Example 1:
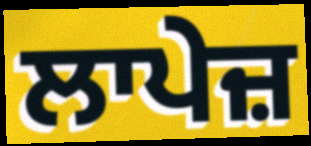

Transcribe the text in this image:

ਲਾਪੇਜ਼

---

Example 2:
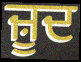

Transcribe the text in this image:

ਜ਼ੂਦ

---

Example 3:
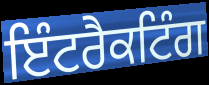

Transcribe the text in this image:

ਇੰਟਰੈਕਟਿੰਗ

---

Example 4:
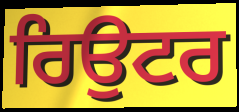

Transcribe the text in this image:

ਰਿਉਟਰ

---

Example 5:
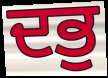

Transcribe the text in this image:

ਦਭੁ